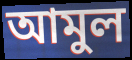
আমুল